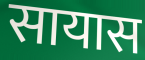
सायास